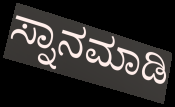
ಸ್ನಾನಮಾಡಿ